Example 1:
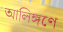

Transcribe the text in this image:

আলিঙ্গণে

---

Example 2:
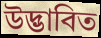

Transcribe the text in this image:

উদ্ভাবিত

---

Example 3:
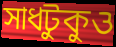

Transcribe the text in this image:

সাধটুকুও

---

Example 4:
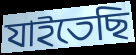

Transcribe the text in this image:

যাইতেছি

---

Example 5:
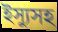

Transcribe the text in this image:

ইস্যুসহ